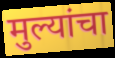
मुल्यांचा